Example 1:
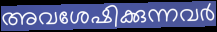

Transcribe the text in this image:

അവശേഷിക്കുന്നവർ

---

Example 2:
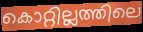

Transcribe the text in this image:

കൊറ്റില്ലത്തിലെ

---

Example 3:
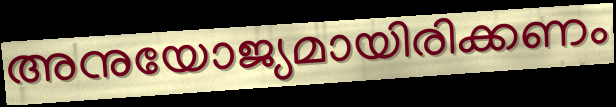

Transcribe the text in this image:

അനുയോജ്യമായിരിക്കണം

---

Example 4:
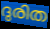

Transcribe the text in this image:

ദുരിത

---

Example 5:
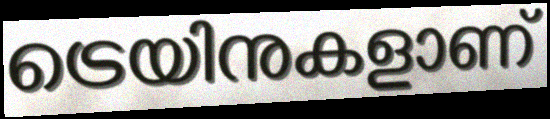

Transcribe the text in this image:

ട്രെയിനുകളാണ്